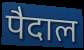
पैदाल